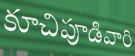
కూచిపూడివారి